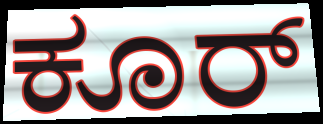
ಕೂರ್